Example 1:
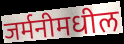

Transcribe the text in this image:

जर्मनीमधील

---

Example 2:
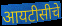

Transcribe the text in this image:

आयटीसीचे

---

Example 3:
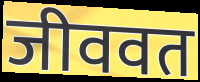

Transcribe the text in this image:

जीववत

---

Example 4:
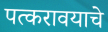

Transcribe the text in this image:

पत्करावयाचे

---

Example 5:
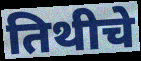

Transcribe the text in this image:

तिथीचे